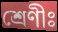
শ্ৰেণীঃ